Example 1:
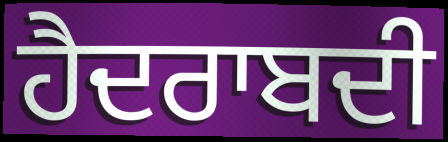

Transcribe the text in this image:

ਹੈਦਰਾਬਦੀ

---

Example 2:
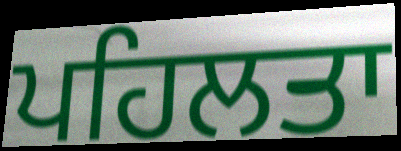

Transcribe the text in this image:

ਪਹਿਲਤਾ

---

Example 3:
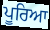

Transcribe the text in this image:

ਪੂਰਿਆ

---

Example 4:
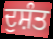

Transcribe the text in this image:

ਦੁਸ਼ੰਤ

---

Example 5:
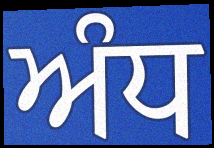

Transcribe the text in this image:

ਅੰਧ